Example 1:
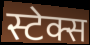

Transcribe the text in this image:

स्टेक्स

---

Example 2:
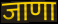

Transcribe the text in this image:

जाणा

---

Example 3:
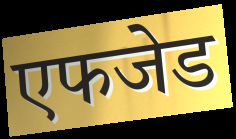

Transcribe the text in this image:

एफजेड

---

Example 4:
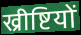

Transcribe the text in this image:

ख्रीष्टियों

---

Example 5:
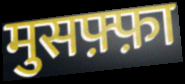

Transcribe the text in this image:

मुसफ़्फ़ा